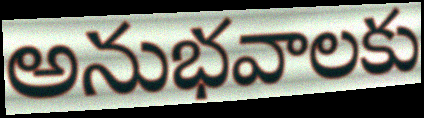
అనుభవాలకు